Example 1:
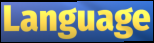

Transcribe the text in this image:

Language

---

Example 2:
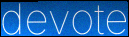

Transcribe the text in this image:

devote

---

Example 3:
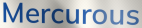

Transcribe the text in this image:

Mercurous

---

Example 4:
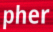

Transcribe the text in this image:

pher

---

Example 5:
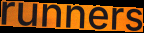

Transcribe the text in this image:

runners